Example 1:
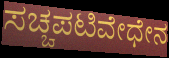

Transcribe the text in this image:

ಸಚ್ಚಪಟಿವೇಧೇನ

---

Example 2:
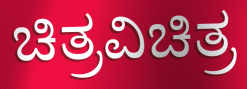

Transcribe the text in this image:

ಚಿತ್ರವಿಚಿತ್ರ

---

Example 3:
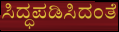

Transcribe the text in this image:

ಸಿದ್ಧಪಡಿಸಿದಂತೆ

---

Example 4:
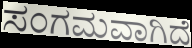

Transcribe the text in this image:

ಸಂಗಮವಾಗಿದೆ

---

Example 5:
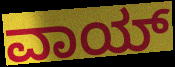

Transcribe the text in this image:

ವಾಯ್